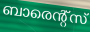
ബാരെന്റ്സ്